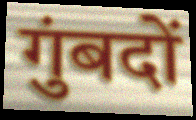
गुंबदों